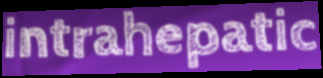
intrahepatic